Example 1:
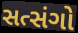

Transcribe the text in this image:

સત્સંગો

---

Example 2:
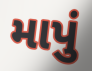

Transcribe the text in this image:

માપું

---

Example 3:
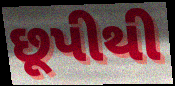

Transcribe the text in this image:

છૂપીથી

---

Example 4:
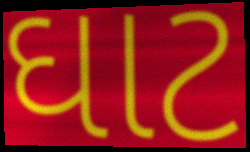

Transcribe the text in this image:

ઘાટ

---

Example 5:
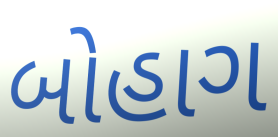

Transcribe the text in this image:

બોહાગ